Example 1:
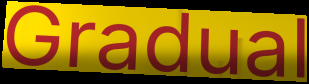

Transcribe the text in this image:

Gradual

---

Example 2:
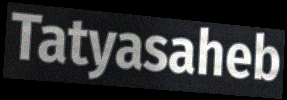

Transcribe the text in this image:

Tatyasaheb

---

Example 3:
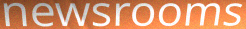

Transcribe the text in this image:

newsrooms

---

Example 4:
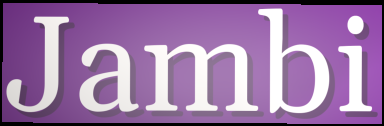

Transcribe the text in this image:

Jambi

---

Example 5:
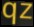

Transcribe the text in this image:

qz